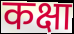
कक्षा